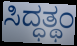
ಸಿದ್ಧತ್ಥಂ